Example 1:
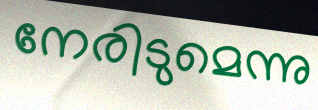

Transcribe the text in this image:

നേരിടുമെന്നു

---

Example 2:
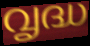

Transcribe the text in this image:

വൃദ്ധ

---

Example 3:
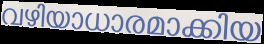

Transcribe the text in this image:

വഴിയാധാരമാക്കിയ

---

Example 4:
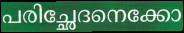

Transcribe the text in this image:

പരിച്ഛേദനെക്കോ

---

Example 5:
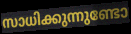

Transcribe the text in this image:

സാധിക്കുന്നുണ്ടോ